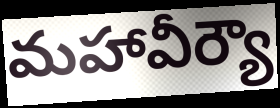
మహావీర్యౌ